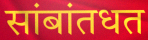
सांबांतधत